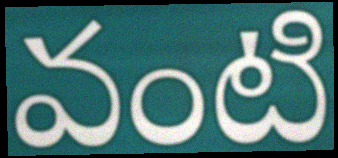
వంటి